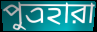
পুত্রহারা